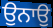
ਉਨਾਉ